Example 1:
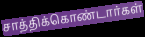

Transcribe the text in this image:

சாத்திக்கொண்டார்கள்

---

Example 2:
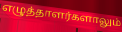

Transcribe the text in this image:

எழுத்தாளர்களாலும்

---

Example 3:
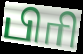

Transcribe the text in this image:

பிரி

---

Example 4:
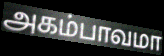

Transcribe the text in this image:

அகம்பாவமா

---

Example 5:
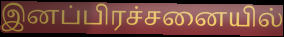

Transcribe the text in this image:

இனப்பிரச்சனையில்